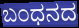
ಬಂಧನದ